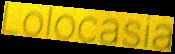
Lolocasia